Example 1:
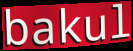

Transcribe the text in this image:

bakul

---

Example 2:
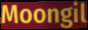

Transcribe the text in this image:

Moongil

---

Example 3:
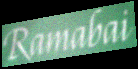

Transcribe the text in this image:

Ramabai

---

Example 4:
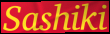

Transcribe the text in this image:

Sashiki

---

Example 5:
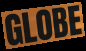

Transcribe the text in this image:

GLOBE